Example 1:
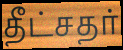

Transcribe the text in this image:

தீட்சதர்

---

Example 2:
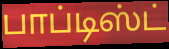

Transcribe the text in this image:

பாப்டிஸ்ட்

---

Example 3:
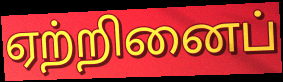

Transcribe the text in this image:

ஏற்றினைப்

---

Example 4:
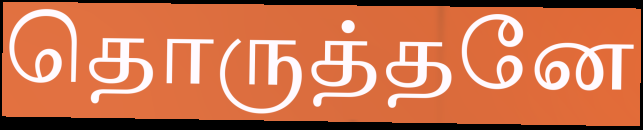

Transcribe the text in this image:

தொருத்தனே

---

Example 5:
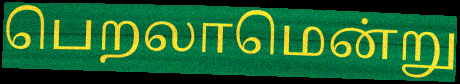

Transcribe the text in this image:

பெறலாமென்று